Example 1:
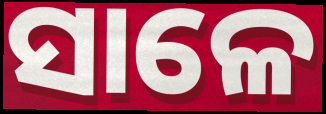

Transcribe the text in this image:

ସାଳେ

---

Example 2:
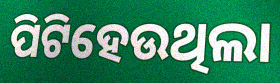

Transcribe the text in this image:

ପିଟିହେଉଥିଲା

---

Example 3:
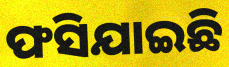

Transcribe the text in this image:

ଫସିଯାଇଛି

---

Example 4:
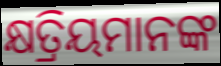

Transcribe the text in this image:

କ୍ଷତ୍ରିୟମାନଙ୍କ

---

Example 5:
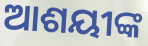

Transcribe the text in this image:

ଆଶୟୀଙ୍କ